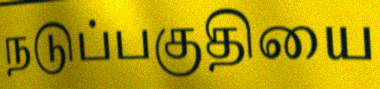
நடுப்பகுதியை